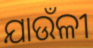
ଯାଉଁଳୀ